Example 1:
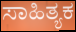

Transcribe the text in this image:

ಸಾಹಿತ್ಯಕ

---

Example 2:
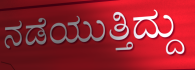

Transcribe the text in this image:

ನಡೆಯುತ್ತಿದ್ದು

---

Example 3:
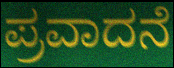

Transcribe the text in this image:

ಪ್ರವಾದನೆ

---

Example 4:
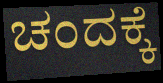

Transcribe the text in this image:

ಚಂದಕ್ಕೆ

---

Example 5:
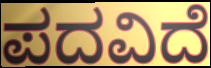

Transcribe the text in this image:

ಪದವಿದೆ